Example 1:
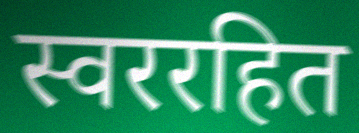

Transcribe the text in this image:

स्वररहित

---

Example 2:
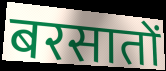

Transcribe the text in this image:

बरसातों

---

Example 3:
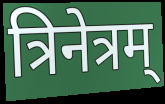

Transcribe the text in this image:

त्रिनेत्रम्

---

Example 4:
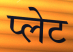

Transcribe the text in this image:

प्लेट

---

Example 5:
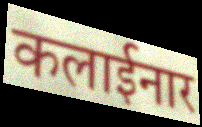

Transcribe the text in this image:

कलाईनार